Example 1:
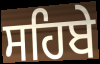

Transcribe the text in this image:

ਸਹਿਬੇ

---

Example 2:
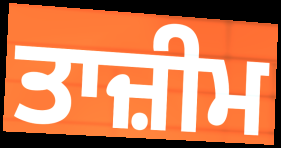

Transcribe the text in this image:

ਤਾਜ਼ੀਮ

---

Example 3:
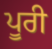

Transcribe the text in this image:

ਪੂਰੀ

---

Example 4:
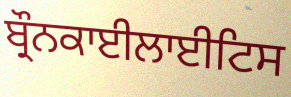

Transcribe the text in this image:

ਬ੍ਰੌਨਕਾਈਲਾਈਟਿਸ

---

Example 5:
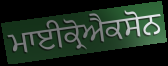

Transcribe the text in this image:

ਮਾਈਕ੍ਰੋਐਕਸੋਨ